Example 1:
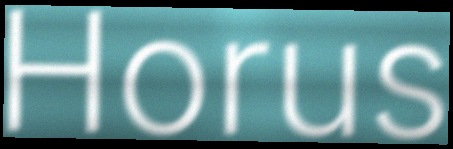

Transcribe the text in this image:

Horus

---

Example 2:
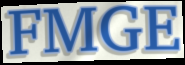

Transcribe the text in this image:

FMGE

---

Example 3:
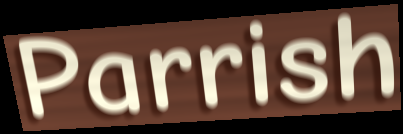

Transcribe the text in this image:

Parrish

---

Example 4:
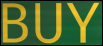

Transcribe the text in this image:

BUY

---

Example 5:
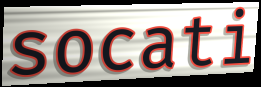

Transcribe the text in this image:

socati